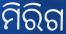
ମିରିଗ